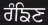
ਰੰਙਿਣ